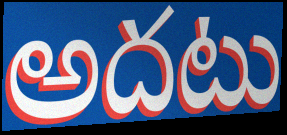
అదటు